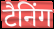
टैनिंग